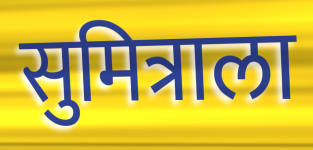
सुमित्राला